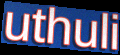
uthuli